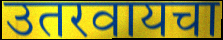
उतरवायचा